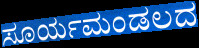
ಸೂರ್ಯಮಂಡಲದ